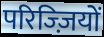
परिज्ज़ियों